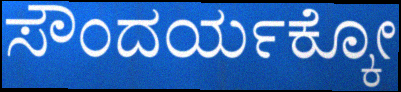
ಸೌಂದರ್ಯಕ್ಕೋ